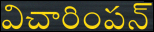
విచారింపన్